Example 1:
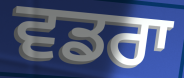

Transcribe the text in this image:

ਵਡਰਾ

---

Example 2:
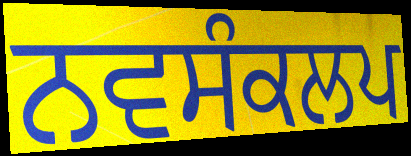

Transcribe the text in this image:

ਨਵਸੰਕਲਪ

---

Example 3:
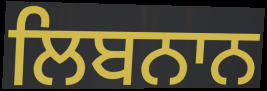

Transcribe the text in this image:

ਲਿਬਨਾਨ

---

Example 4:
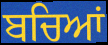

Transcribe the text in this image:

ਬਚਿਆਂ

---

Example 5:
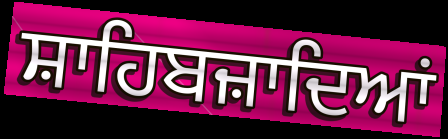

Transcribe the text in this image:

ਸ਼ਾਹਿਬਜ਼ਾਦਿਆਂ